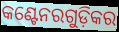
କଣ୍ଟେନରଗୁଡ଼ିକର